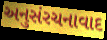
અનુસંરચનાવાદ